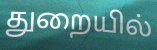
துறையில்